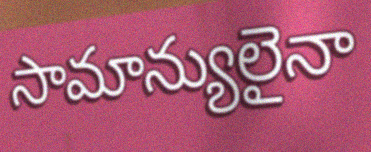
సామాన్యులైనా